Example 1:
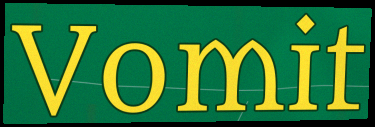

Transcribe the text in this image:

Vomit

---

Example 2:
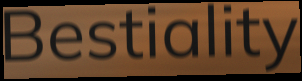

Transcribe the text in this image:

Bestiality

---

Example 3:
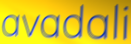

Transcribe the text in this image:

avadali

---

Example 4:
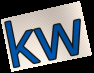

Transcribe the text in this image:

kw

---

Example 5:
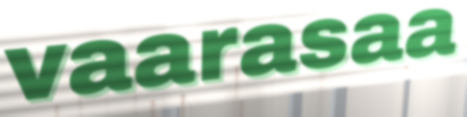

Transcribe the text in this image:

vaarasaa